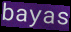
bayas